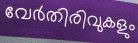
വേർതിരിവുകളും